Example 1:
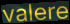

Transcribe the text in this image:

valere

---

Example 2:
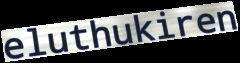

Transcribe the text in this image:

eluthukiren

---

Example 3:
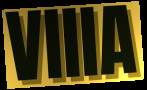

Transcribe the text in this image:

VIIIA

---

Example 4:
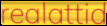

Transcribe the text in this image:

realattid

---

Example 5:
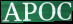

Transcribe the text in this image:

APOC